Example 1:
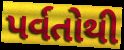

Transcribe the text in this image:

પર્વતોથી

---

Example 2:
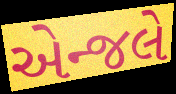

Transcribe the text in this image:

એન્જલે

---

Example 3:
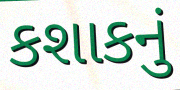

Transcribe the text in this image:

કશાકનું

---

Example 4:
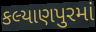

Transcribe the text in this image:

કલ્યાણપુરમાં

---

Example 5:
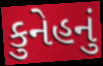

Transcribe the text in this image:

કુનેહનું